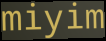
miyim